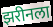
झरीनला